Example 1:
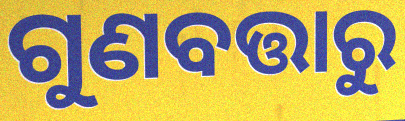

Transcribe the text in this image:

ଗୁଣବତ୍ତାରୁ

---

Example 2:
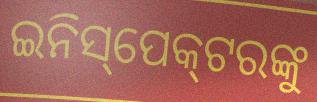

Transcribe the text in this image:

ଇନିସ୍‌ପେକ୍‌ଟରଙ୍କୁ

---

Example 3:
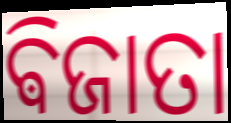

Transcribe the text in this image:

ଵିଜାତା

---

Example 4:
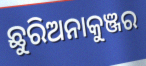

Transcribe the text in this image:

ଛୁରିଅନାକୁଞ୍ଜର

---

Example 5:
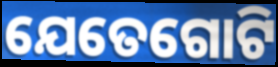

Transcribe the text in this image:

ଯେତେଗୋଟି